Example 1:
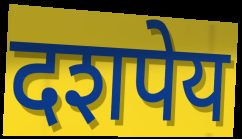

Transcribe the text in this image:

दशपेय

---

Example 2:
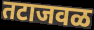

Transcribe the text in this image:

तटाजवळ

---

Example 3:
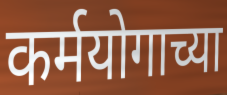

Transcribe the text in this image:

कर्मयोगाच्या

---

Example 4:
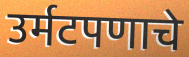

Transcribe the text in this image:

उर्मटपणाचे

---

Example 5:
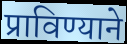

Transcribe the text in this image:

प्राविण्याने